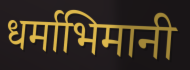
धर्माभिमानी